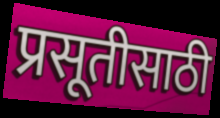
प्रसूतीसाठी